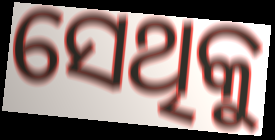
ସେଥିକୁ